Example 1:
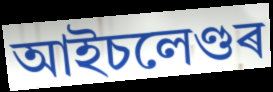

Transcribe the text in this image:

আইচলেণ্ডৰ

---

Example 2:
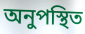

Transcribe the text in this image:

অনুপস্থিত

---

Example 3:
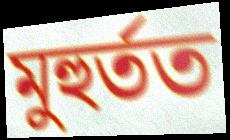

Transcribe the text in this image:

মুহুৰ্তত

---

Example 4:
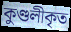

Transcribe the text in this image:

কুণ্ডলীকৃত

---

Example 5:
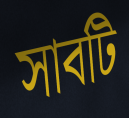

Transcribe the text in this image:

সাবটি